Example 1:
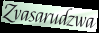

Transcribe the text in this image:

Zvasarudzwa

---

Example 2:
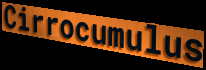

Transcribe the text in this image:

Cirrocumulus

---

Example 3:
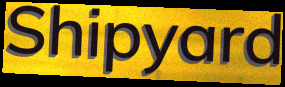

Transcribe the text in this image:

Shipyard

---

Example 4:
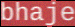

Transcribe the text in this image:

bhaje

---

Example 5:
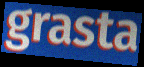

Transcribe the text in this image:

grasta